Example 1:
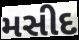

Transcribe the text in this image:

મસીદ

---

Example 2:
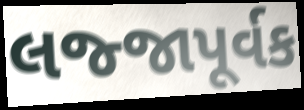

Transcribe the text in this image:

લજ્જાપૂર્વક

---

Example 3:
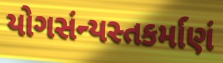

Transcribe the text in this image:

યોગસંન્યસ્તકર્માણં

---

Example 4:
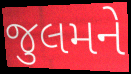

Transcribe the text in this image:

જુલમને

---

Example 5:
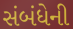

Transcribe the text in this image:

સંબંધેની